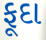
ફૂદા